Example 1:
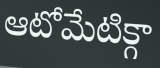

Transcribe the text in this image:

ఆటోమేటిక్గా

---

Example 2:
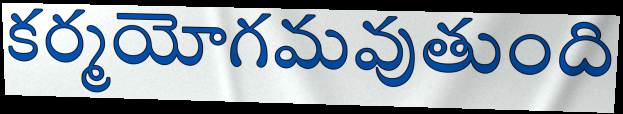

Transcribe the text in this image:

కర్మయోగమవుతుంది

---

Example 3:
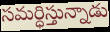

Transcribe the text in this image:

సమర్ధిస్తున్నాడు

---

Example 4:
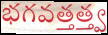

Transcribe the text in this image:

భగవత్తత్త్వ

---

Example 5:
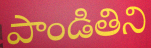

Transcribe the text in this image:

పాండితిని